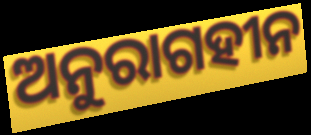
ଅନୁରାଗହୀନ